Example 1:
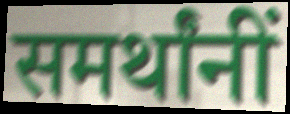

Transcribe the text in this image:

समर्थांनीं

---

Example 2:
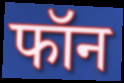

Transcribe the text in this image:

फॉन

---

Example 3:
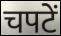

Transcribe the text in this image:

चपटें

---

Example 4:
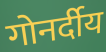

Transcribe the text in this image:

गोनर्दीय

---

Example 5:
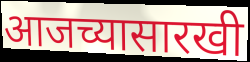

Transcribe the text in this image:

आजच्यासारखी